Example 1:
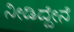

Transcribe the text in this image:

ನೀಡಿದ್ದೇನೆ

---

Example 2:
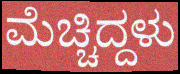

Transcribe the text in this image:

ಮೆಚ್ಚಿದ್ದಳು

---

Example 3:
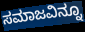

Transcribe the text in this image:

ಸಮಾಜವಿನ್ನೂ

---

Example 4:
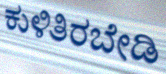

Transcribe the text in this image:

ಕುಳಿತಿರಬೇಡಿ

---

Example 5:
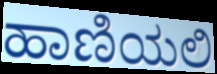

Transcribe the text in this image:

ಹಾಣಿಯಲಿ